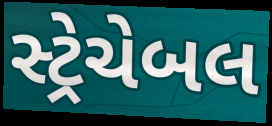
સ્ટ્રેચેબલ